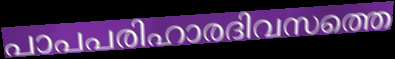
പാപപരിഹാരദിവസത്തെ